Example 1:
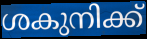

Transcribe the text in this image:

ശകുനിക്ക്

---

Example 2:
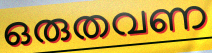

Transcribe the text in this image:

ഒരുതവണ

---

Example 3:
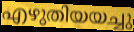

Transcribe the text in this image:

എഴുതിയയച്ചു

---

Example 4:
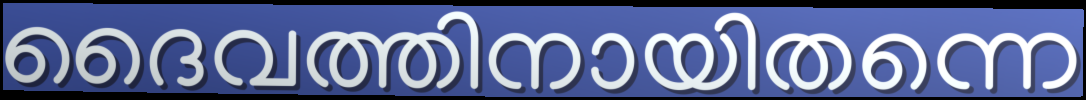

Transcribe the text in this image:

ദൈവത്തിനായിതന്നെ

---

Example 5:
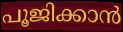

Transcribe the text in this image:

പൂജിക്കാൻ